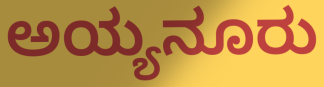
ಅಯ್ಯನೂರು